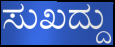
ಸುಖದ್ದು